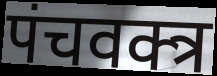
पंचवक्त्र